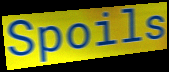
Spoils